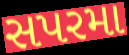
સપરમા